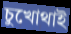
চুখোথাই